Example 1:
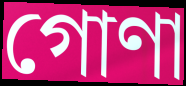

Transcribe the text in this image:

গোণা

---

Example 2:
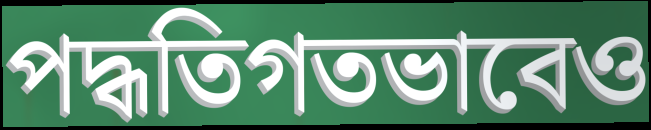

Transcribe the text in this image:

পদ্ধতিগতভাবেও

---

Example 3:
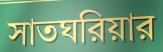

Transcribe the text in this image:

সাতঘরিয়ার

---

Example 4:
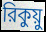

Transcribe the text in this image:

রিকুয়ু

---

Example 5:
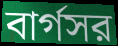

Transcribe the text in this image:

বার্গসর